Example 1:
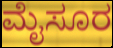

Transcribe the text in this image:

ಮೈಸೂರ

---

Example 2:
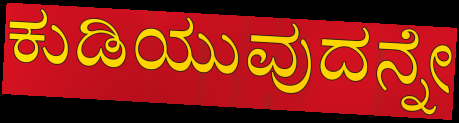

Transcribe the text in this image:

ಕುಡಿಯುವುದನ್ನೇ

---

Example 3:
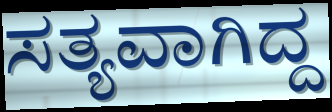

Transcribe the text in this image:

ಸತ್ಯವಾಗಿದ್ದ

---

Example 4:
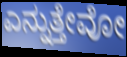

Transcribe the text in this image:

ಎನ್ನುತ್ತೇವೋ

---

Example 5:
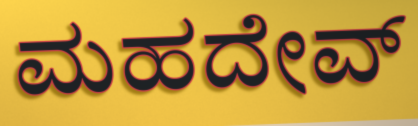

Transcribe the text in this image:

ಮಹದೇವ್